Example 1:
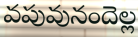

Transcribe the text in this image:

వపువునందెల్ల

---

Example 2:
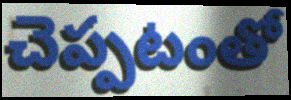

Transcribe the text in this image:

చెప్పటంతో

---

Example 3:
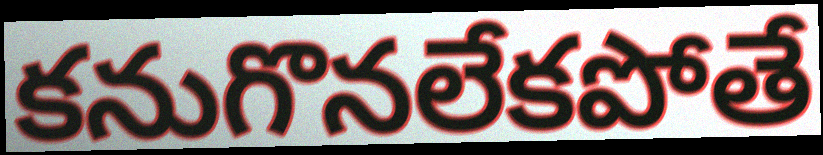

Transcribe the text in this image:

కనుగొనలేకపోతే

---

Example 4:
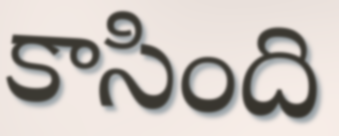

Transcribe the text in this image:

కాసింది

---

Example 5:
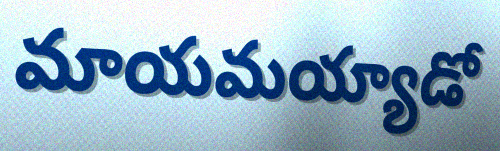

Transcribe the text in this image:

మాయమయ్యాడో